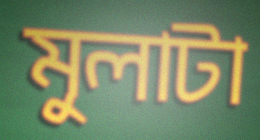
মুলাটা